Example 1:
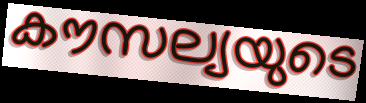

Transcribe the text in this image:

കൗസല്യയുടെ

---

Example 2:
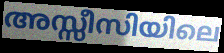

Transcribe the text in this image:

അസ്സീസിയിലെ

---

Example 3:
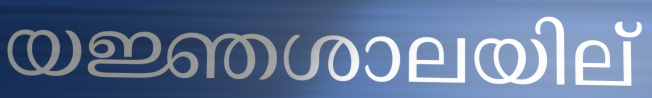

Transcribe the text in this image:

യജ്ഞശാലയില്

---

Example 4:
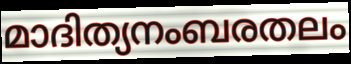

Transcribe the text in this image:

മാദിത്യനംബരതലം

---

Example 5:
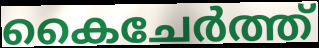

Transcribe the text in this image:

കൈചേർത്ത്